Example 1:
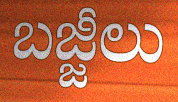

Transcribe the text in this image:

బజ్జీలు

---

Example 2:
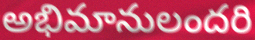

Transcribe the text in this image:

అభిమానులందరి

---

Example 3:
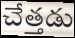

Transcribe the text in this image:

చేత్తడు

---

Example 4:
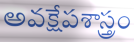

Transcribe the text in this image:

అవక్షేపశాస్త్రం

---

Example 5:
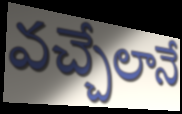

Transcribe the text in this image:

వచ్చేలానే